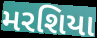
મરશિયા